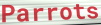
Parrots